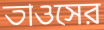
তাওসের